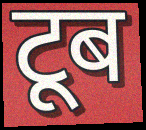
टूब